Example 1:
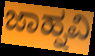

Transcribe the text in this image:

ಜಾಹ್ನವಿ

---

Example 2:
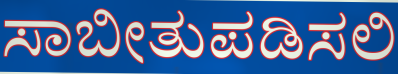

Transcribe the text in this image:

ಸಾಬೀತುಪಡಿಸಲಿ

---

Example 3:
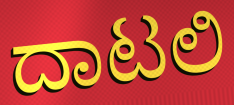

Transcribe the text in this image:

ದಾಟಲಿ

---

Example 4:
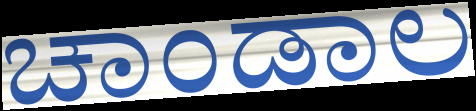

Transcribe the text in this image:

ಚಾಂಡಾಲ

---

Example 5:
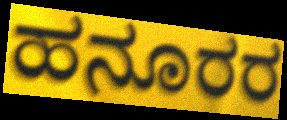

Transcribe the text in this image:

ಹನೂರರ